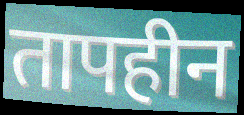
तापहीन